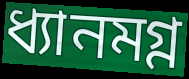
ধ্যানমগ্ন